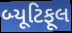
બ્યૂટિફૂલ